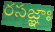
రసజ్ఞాః